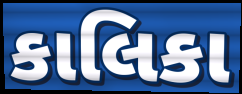
કાલિકા